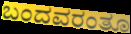
ಬಂದವರಂತೂ